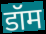
डॉम